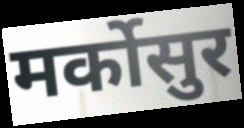
मर्कोसुर